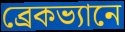
ব্রেকভ্যানে